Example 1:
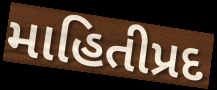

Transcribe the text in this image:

માહિતીપ્રદ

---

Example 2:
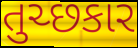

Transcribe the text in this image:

તુચ્છકાર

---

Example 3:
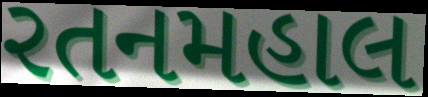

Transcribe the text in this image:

રતનમહાલ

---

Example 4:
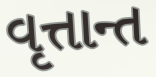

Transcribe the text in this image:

વૃત્તાન્ત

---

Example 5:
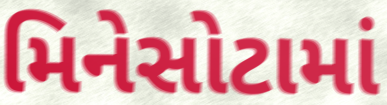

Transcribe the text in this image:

મિનેસોટામાં